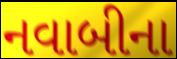
નવાબીના